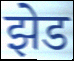
झेड